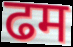
ढम